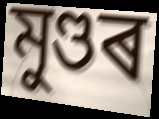
মুণ্ডৰ